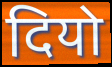
दियो